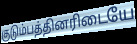
குடும்பத்தினரிடையே